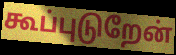
கூப்புடுறேன்